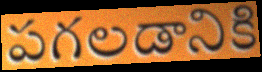
పగలడానికి